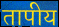
तापीय